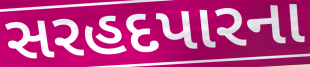
સરહદપારના